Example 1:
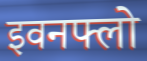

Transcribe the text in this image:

इवनफ्लो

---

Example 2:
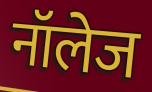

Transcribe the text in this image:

नॉलेज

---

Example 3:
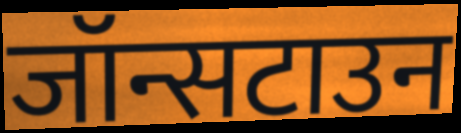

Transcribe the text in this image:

जॉन्सटाउन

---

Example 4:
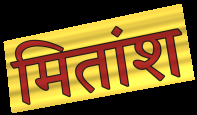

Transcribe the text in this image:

मितांश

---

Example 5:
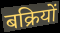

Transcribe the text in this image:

बक्रियों